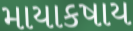
માયાકષાય